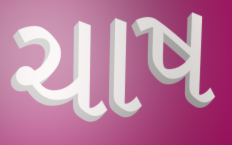
ચાષ